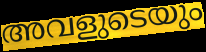
അവളുടെയും